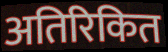
अतिरिकित